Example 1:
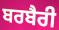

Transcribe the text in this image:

ਬਰਬੈਰੀ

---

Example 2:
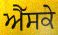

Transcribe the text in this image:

ਐੱਸਕੇ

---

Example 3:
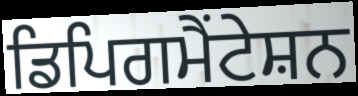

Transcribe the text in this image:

ਡਿਪਿਗਮੈਂਟੇਸ਼ਨ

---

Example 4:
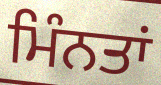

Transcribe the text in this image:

ਮਿੰਨਤਾਂ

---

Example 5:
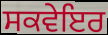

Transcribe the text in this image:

ਸਕਵੇਇਰ